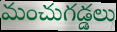
మంచుగడ్డలు